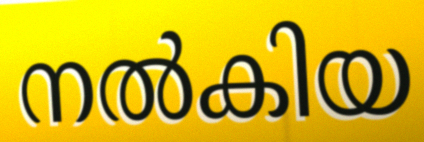
നൽകിയ